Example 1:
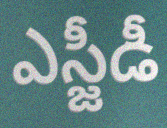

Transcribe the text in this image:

ఎస్జీడీ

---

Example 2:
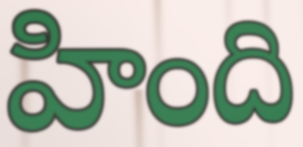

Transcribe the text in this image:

హింది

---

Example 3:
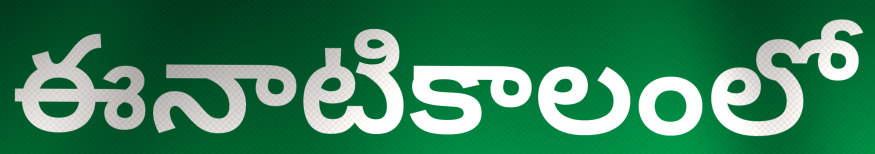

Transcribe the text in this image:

ఈనాటికాలంలో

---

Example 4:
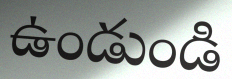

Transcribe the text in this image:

ఉండుండి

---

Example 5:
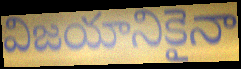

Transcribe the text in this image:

విజయానికైనా